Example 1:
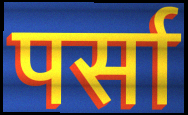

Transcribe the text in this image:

पर्सा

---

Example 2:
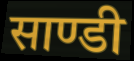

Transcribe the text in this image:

साण्डी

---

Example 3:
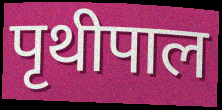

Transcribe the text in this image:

पृथीपाल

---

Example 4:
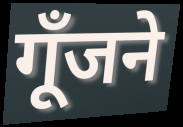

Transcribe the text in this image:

गूँजने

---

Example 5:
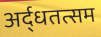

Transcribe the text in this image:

अर्द्धतत्सम